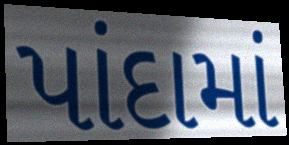
પાંદામાં